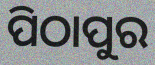
ପିଠାପୁର